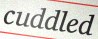
cuddled